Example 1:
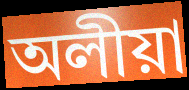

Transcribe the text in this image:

অলীয়া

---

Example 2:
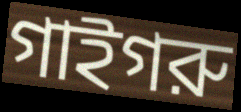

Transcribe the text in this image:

গাইগৰু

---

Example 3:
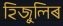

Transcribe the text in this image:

হিজুলিৰ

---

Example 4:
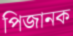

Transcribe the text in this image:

পিজানক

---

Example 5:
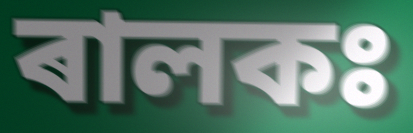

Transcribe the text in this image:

ৰালকঃ